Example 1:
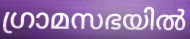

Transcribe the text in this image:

ഗ്രാമസഭയിൽ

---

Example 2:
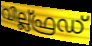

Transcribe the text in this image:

വില്ല്ഫ്രഡ്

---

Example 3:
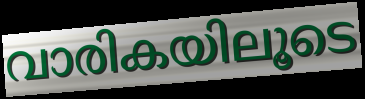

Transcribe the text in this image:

വാരികയിലൂടെ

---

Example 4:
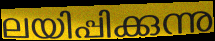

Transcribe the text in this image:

ലയിപ്പിക്കുന്നു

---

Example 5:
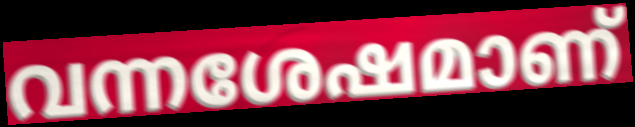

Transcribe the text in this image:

വന്നശേഷമാണ്